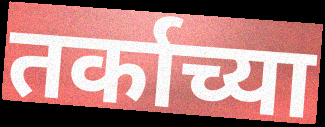
तर्काच्या